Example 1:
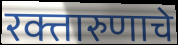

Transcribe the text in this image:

रक्तारुणाचे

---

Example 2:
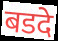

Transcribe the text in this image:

बडदे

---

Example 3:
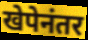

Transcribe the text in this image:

खेपेनंतर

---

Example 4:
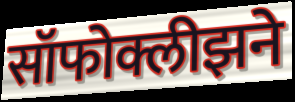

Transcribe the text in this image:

सॉफोक्लीझने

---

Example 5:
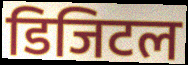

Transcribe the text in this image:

डिजिटल